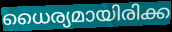
ധൈര്യമായിരിക്ക